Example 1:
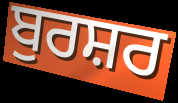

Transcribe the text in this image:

ਬੁਰਸ਼ਰ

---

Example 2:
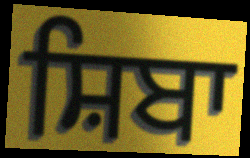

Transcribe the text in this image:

ਸ਼ਿਬਾ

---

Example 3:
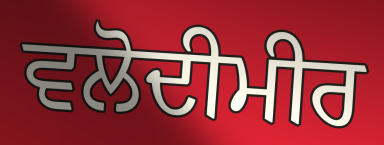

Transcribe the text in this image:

ਵਲੋਦੀਮੀਰ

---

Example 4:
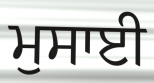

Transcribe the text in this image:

ਮੁਸਾਈ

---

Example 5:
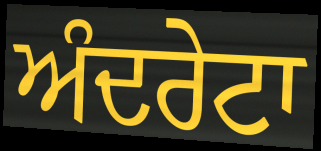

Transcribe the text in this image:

ਅੰਦਰੇਟਾ